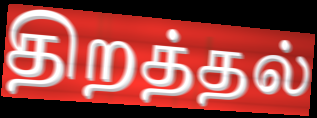
திறத்தல்